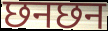
छनछन